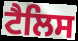
ਟੈਲਿਸ